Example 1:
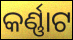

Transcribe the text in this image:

କର୍ଣ୍ଣାଟ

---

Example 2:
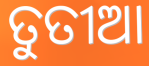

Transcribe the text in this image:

ତୁତୀଆ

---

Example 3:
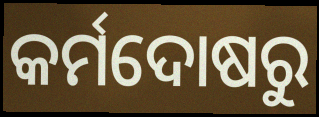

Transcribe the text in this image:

କର୍ମଦୋଷରୁ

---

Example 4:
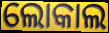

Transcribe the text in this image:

ଲୋକାଲ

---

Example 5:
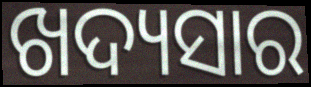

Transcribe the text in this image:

ଖଦ୍ୟସାର